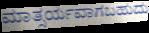
ಮಾತ್ಸರ್ಯವಾಗಬಹುದು